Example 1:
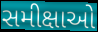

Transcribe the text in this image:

સમીક્ષાઓ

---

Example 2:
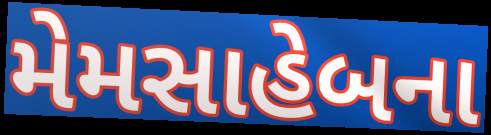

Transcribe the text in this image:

મેમસાહેબના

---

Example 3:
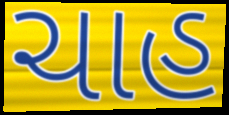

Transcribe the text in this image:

ચાહ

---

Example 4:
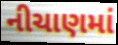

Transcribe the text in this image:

નીચાણમાં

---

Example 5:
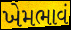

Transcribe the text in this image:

ખેમભાવં